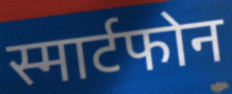
स्मार्टफोन